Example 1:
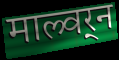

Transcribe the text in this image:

माल्वर्न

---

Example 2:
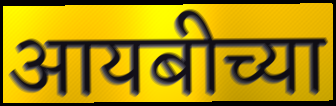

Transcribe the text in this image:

आयबीच्या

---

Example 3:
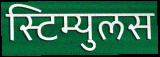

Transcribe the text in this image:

स्टिम्युलस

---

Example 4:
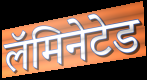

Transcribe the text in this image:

लॅमिनेटेड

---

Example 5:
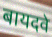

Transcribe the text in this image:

बायदवे